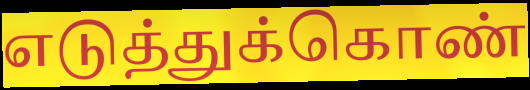
எடுத்துக்கொண்